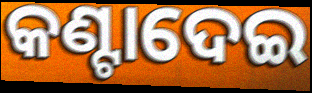
କଣ୍ଟାଦେଇ